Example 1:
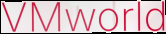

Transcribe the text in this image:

VMworld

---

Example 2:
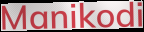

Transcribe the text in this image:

Manikodi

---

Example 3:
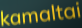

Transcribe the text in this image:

kamaltai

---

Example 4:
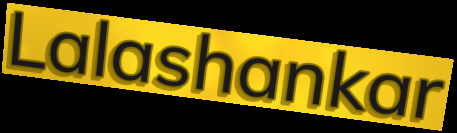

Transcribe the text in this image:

Lalashankar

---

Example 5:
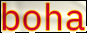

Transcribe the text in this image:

boha